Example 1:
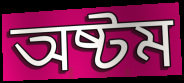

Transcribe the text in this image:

অষ্টম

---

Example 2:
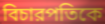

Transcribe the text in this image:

বিচারপতিকে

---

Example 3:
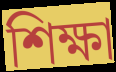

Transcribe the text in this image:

শিক্ষা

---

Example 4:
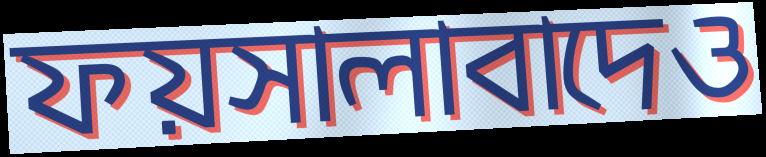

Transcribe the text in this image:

ফয়সালাবাদেও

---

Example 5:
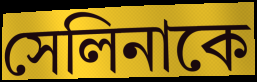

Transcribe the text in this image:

সেলিনাকে